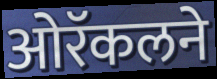
ओरॅकलने